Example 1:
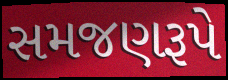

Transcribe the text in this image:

સમજણરૂપે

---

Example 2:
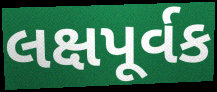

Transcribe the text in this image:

લક્ષપૂર્વક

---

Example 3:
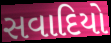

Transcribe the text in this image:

સવાદિયો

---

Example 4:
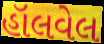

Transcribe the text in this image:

હૉલવેલ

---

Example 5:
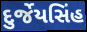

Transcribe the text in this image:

દુર્જેયસિંહ